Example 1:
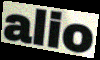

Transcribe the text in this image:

alio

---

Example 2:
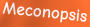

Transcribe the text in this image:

Meconopsis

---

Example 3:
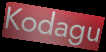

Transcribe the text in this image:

Kodagu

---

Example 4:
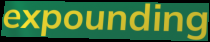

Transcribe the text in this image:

expounding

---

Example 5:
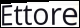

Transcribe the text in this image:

Ettore